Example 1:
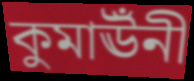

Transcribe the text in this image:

কুমাঊঁনী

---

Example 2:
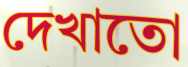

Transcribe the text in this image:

দেখাতো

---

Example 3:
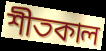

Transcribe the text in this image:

শীতকাল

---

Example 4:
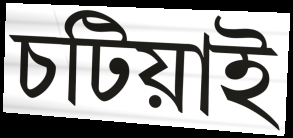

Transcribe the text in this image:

চটিয়াই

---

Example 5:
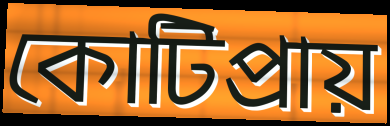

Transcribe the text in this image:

কোটিপ্ৰায়